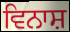
ਵਿਨਾਸ਼